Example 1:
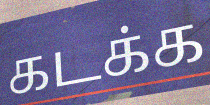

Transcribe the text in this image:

கடக்க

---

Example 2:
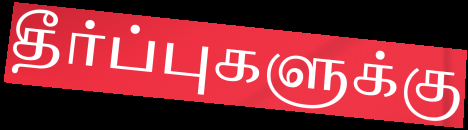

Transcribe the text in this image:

தீர்ப்புகளுக்கு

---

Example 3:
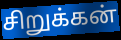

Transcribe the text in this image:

சிறுக்கன்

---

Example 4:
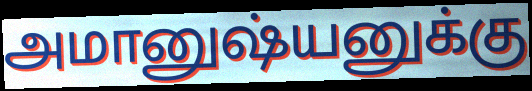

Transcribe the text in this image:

அமானுஷ்யனுக்கு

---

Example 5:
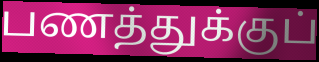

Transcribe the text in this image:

பணத்துக்குப்